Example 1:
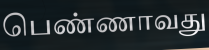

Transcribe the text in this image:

பெண்ணாவது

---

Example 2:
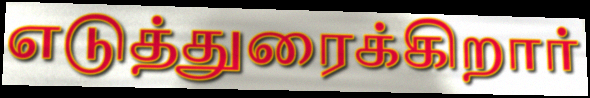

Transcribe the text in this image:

எடுத்துரைக்கிறார்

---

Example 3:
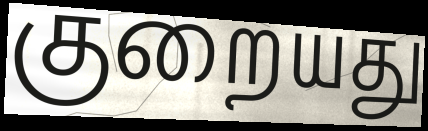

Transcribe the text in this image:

குறையது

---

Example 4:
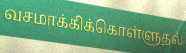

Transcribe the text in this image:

வசமாக்கிக்கொள்ளுதல்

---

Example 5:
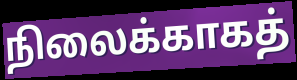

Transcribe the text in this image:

நிலைக்காகத்